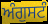
ਅੰਗੁਸਟੰ